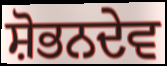
ਸ਼ੋਭਨਦੇਵ